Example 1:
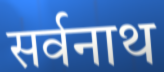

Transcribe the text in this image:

सर्वनाथ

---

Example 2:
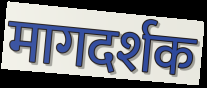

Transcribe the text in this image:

मागदर्शक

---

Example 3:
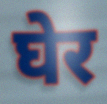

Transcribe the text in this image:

घेर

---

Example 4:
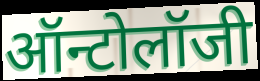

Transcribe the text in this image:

ऑन्टोलॉजी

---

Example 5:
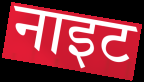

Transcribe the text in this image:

नाइट